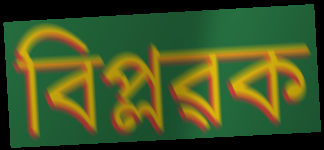
বিপ্লৱক